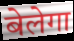
बेलेगा